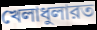
খেলাধুলারত